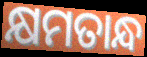
କ୍ଷମତାନ୍ଧ